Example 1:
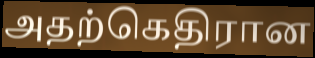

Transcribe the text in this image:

அதற்கெதிரான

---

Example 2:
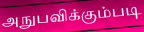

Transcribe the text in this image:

அநுபவிக்கும்படி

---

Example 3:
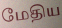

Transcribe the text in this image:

மேதிய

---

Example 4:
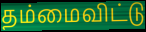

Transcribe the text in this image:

தம்மைவிட்டு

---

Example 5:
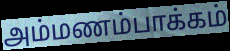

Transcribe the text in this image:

அம்மணம்பாக்கம்